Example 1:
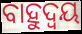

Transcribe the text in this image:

ବାହୁଦ୍ୱୟ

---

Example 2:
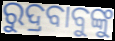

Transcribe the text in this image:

ରୁଦ୍ରବାବୁଙ୍କୁ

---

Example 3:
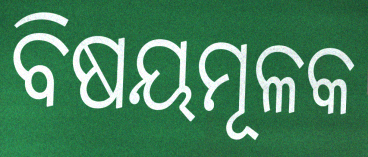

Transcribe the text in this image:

ବିଷୟମୂଳକ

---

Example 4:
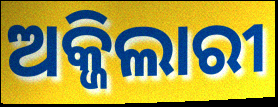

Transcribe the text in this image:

ଅକ୍ଜିଲାରୀ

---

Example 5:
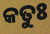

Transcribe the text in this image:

କତୁଃ